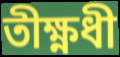
তীক্ষ্ণধী